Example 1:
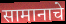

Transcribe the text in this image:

सामानाचे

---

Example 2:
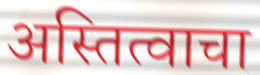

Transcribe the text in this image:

अस्तित्वाचा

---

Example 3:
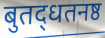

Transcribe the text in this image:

बुतद्धतनष्ठ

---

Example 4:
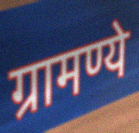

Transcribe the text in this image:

ग्रामण्ये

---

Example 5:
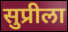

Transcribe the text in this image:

सुप्रीला